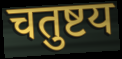
चतुष्टय